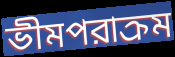
ভীমপরাক্রম